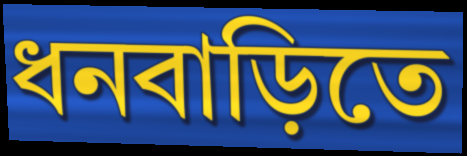
ধনবাড়িতে